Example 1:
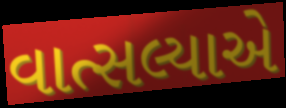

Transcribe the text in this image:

વાત્સલ્યાએ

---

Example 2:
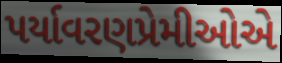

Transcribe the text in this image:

પર્યાવરણપ્રેમીઓએ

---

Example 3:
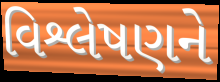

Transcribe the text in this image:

વિશ્લેષણને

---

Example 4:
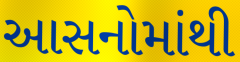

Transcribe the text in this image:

આસનોમાંથી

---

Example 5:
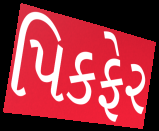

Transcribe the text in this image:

પિકફેર